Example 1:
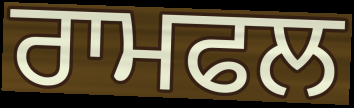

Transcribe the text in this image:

ਰਾਮਫਲ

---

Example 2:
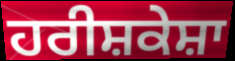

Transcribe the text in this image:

ਹਰੀਸ਼ਕੇਸ਼ਾ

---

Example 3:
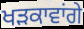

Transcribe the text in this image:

ਖੜਕਾਵਾਂਗੇ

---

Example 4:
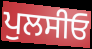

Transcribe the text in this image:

ਪੁਲਸੀਓ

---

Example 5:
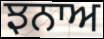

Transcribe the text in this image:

ਝਨਾਅ